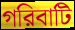
গরিবাটি